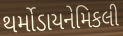
થર્મોડાયનેમિકલી